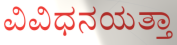
ವಿವಿಧನಯತ್ತಾ